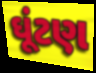
ઘૂંટણ